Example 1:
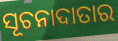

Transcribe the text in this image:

ସୂଚନାଦାତାର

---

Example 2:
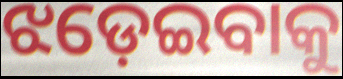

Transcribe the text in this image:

ଝଡ଼େଇବାକୁ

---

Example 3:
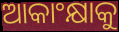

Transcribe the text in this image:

ଆକାଂକ୍ଷାକୁ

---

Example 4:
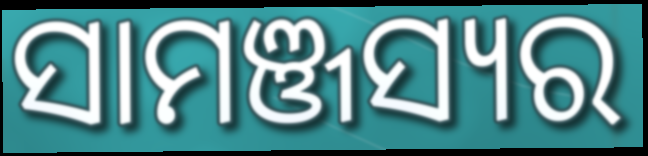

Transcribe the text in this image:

ସାମଞ୍ଜସ୍ୟର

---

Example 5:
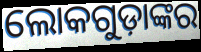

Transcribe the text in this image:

ଲୋକଗୁଡ଼ାଙ୍କର